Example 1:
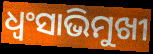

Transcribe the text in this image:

ଧ୍ଵଂସାଭିମୁଖୀ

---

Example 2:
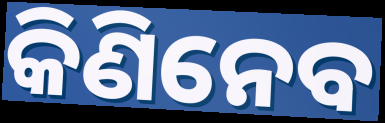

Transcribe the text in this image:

କିଣିନେବ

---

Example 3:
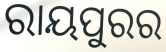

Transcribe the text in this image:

ରାୟପୁରର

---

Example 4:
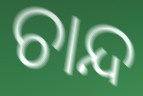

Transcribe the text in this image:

ଚାନ୍ଦ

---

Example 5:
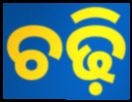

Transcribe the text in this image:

ଚଢ଼ି